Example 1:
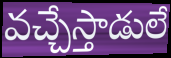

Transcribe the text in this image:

వచ్చేస్తాడులే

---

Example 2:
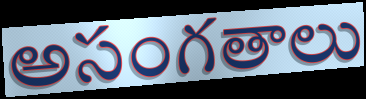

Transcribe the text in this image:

అసంగతాలు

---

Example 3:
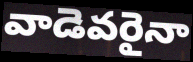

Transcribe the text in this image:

వాడెవరైనా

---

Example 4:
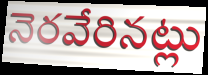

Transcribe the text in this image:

నెరవేరినట్లు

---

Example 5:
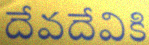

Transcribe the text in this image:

దేవదేవికి